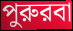
পুরুরবা